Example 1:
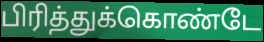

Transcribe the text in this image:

பிரித்துக்கொண்டே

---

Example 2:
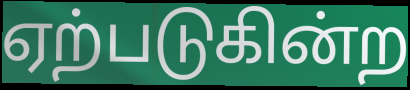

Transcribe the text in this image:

ஏற்படுகின்ற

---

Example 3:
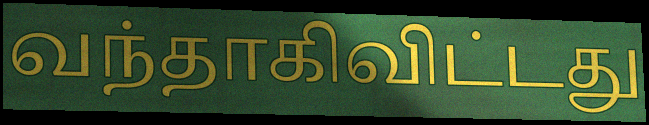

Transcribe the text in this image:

வந்தாகிவிட்டது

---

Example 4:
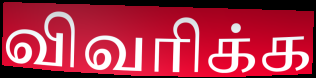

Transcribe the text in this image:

விவரிக்க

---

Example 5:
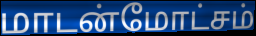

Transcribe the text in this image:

மாடன்மோட்சம்